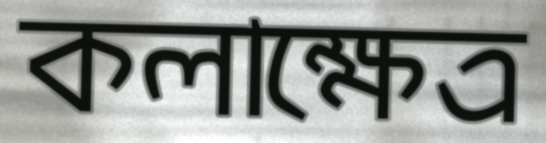
কলাক্ষেত্ৰ